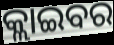
କ୍ଲାଇବର